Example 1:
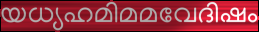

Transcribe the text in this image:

യധ്യഹമിമമവേദിഷം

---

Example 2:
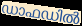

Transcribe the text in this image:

ഡാഫഡിൽ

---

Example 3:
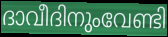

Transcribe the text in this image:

ദാവീദിനുംവേണ്ടി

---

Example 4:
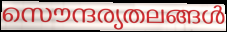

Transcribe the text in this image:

സൌന്ദര്യതലങ്ങൾ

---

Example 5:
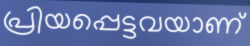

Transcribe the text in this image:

പ്രിയപ്പെട്ടവയാണ്